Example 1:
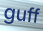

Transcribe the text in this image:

guff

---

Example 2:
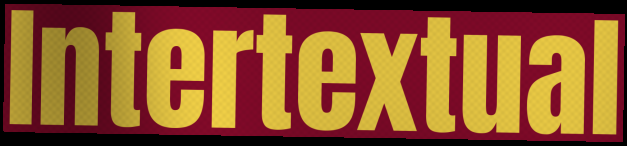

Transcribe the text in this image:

Intertextual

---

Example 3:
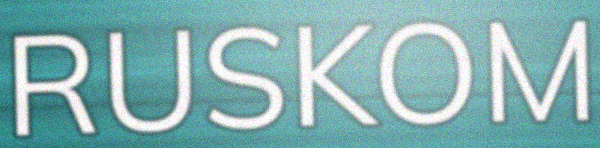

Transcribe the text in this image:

RUSKOM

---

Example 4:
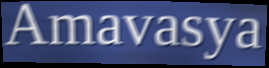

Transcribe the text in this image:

Amavasya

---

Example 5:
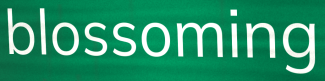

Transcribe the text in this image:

blossoming